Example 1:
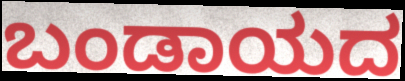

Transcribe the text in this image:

ಬಂಡಾಯದ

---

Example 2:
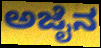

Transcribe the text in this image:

ಅಜೈನ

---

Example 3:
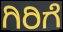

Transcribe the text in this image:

ಗಿರಿಗೆ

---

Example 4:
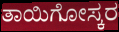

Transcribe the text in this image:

ತಾಯಿಗೋಸ್ಕರ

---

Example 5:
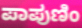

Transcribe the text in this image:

ಪಾಪುಣಿಂ